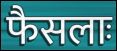
फैसलाः